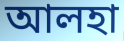
আলহা